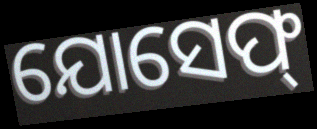
ଯୋସେଫ୍